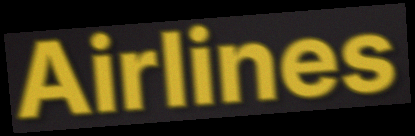
Airlines